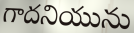
గాదనియును